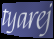
tyarej